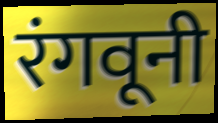
रंगवूनी